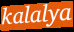
kalalya